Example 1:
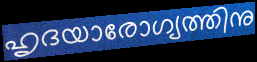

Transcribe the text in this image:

ഹൃദയാരോഗ്യത്തിനു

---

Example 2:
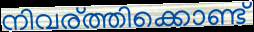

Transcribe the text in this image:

നിവര്ത്തിക്കൊണ്ട്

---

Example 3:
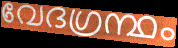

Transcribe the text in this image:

വേദഗ്രന്ഥം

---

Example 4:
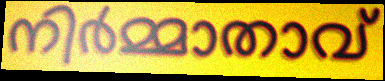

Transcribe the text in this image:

നിർമ്മാതാവ്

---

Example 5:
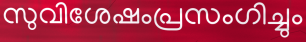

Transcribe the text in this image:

സുവിശേഷംപ്രസംഗിച്ചും